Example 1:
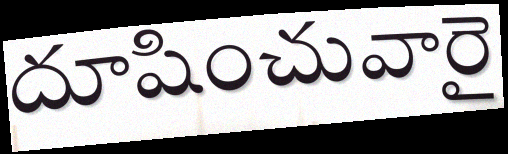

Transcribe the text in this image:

దూషించువారై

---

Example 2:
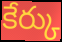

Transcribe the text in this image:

కేర్కు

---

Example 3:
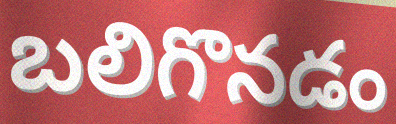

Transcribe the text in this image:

బలిగొనడం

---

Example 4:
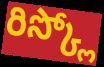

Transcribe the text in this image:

రిస్క్లో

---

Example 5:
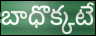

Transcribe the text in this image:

బాధొక్కటే